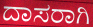
ದಾಸರಾಗಿ